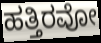
ಹತ್ತಿರವೋ